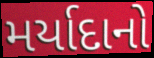
મર્યાદાનો